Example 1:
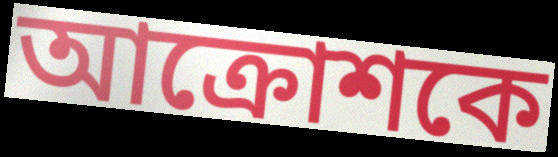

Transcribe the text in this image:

আক্রোশকে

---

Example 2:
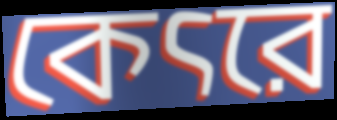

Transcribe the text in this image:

কেৎরে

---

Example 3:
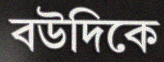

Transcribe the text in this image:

বউদিকে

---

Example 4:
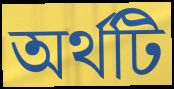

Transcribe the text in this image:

অর্থটি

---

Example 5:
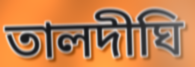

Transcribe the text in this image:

তালদীঘি